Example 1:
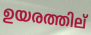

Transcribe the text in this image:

ഉയരത്തില്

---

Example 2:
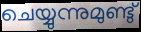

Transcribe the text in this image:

ചെയ്യുന്നുമുണ്ടു്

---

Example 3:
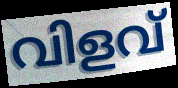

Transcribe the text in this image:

വിളവ്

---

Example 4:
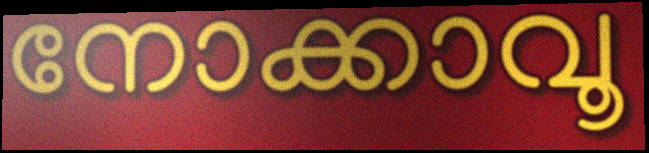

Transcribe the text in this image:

നോക്കാവൂ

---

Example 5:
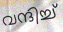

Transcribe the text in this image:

വന്ദിച്ച്